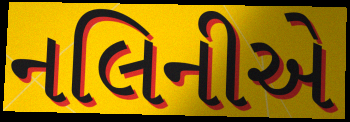
નલિનીએ